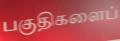
பகுதிகளைப்